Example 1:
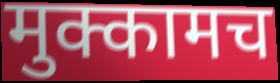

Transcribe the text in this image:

मुक्कामच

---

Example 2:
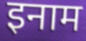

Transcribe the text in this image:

इनाम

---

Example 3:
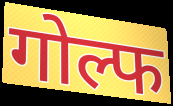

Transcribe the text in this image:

गोल्फ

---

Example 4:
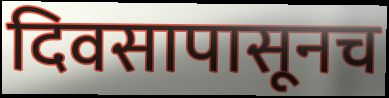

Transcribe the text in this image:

दिवसापासूनच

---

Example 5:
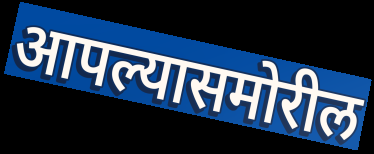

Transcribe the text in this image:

आपल्यासमोरील